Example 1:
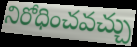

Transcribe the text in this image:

నిరోధించవచ్చు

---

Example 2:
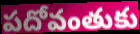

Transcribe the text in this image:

పదోవంతుకు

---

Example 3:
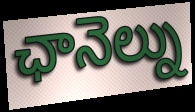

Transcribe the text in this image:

ఛానెల్ను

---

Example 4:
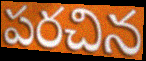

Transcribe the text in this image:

పరచిన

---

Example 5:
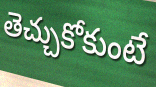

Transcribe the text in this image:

తెచ్చుకోకుంటే